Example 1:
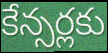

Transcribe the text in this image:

కేన్సర్లకు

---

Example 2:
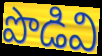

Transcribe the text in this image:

పొడివి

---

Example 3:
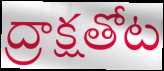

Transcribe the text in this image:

ద్రాక్షతోట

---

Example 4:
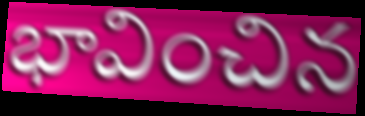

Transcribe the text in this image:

భావించిన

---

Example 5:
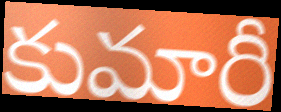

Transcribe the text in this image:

కుమారీ